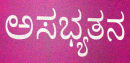
ಅಸಭ್ಯತನ